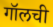
गॉलची